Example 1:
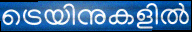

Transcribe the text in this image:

ട്രെയിനുകളിൽ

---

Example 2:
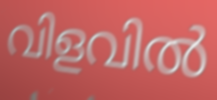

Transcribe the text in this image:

വിളവിൽ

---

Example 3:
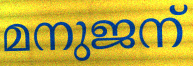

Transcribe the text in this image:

മനുജന്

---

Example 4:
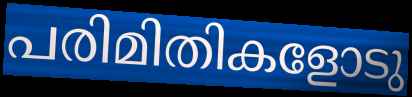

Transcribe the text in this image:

പരിമിതികളോടു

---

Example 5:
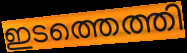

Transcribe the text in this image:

ഇടത്തെത്തി